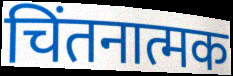
चिंतनात्मक